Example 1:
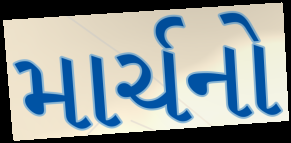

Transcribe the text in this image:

માર્ચનો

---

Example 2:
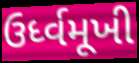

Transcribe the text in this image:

ઉર્ધ્વમૂખી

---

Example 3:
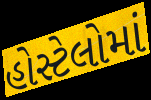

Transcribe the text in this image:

હોસ્ટેલોમાં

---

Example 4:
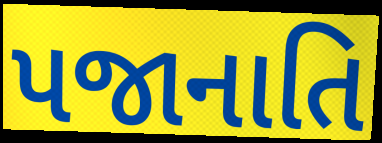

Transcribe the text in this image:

પજાનાતિ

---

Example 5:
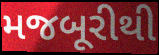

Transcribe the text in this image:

મજબૂરીથી